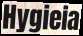
Hygieia